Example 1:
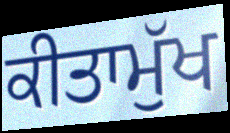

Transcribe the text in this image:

ਕੀਤਾਮੁੱਖ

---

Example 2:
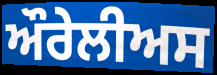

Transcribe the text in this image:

ਔਰੇਲੀਅਸ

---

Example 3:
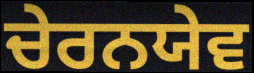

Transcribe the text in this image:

ਚੇਰਨਯੇਵ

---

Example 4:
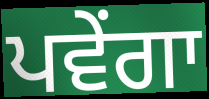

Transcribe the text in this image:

ਪਵੇਂਗਾ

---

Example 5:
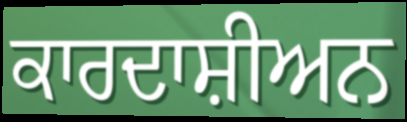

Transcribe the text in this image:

ਕਾਰਦਾਸ਼ੀਅਨ